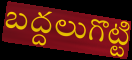
బద్దలుగొట్టి